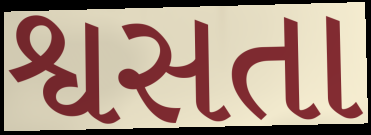
શ્વસતા